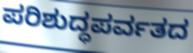
ಪರಿಶುದ್ಧಪರ್ವತದ